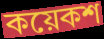
কয়েকশ